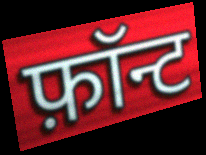
फ़ॉन्ट